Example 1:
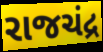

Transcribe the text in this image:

રાજચંદ્ર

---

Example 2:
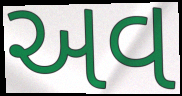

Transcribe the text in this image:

અવ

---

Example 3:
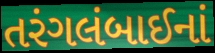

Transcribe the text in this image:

તરંગલંબાઈનાં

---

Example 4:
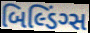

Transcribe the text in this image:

બિલ્ડિંગ્સ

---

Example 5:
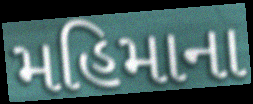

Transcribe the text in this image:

મહિમાના